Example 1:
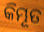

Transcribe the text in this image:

କିମ୍ଭୂତ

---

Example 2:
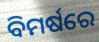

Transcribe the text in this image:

ବିମର୍ଷରେ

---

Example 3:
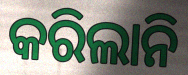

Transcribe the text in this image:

କରିଲାନି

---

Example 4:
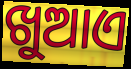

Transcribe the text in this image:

ଖୁଆଏ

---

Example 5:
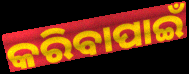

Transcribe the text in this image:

କରିବାପାଇଁ